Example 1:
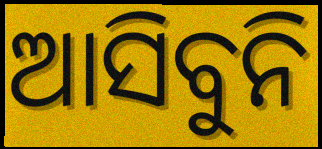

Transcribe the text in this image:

ଆସିବୁନି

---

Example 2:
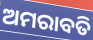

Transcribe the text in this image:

ଅମରାବତି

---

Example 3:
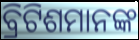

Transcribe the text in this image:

ବ୍ରିଟିଶମାନଙ୍କ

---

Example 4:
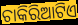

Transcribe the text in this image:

ଚାକିରିଆଟିଏ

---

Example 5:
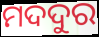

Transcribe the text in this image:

ମଦଦୁର